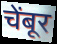
चेंबूर